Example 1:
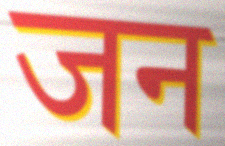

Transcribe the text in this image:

जन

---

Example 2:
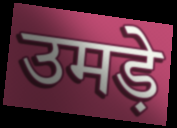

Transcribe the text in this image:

उमड़े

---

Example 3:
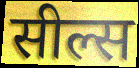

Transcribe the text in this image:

सील्स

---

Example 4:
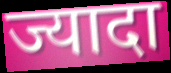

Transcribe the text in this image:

ज्यादा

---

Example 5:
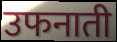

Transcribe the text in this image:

उफनाती